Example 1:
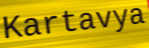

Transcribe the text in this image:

Kartavya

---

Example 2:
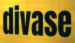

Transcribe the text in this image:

divase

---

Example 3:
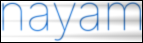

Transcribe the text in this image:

nayam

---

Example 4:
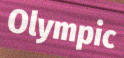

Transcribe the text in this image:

Olympic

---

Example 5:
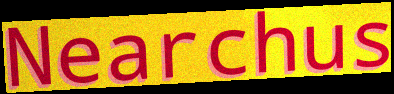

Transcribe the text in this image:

Nearchus